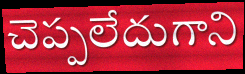
చెప్పలేదుగాని